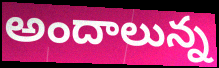
అందాలున్న